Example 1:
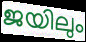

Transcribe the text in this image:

ജയിലും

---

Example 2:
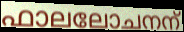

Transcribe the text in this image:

ഫാലലോചനന്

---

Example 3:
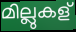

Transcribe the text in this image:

മില്ലുകള്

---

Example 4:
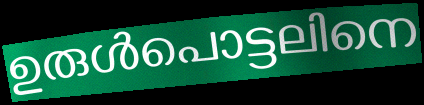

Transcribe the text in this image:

ഉരുൾപൊട്ടലിനെ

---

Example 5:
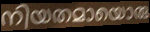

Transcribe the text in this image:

നിയതമായൊരു